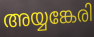
അയ്യങ്കേരി